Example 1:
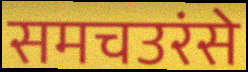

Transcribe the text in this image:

समचउरंसे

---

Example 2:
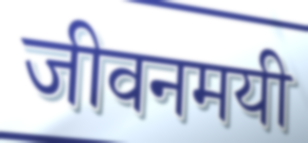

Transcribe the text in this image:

जीवनमयी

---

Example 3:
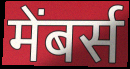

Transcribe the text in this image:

मेंबर्स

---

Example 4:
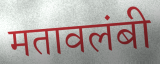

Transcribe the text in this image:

मतावलंबी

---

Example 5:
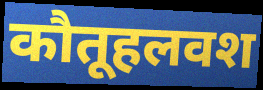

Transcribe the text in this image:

कौतूहलवश